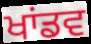
ਖਾਂਡਵ